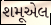
શમૂએલ